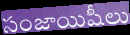
సంజాయిషీలు